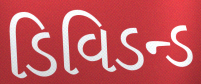
ડિવિડન્ડ